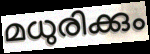
മധുരിക്കും